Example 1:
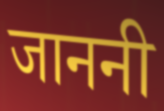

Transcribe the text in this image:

जाननी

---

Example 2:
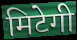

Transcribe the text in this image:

मिटेगी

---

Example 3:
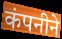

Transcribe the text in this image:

कंपनीने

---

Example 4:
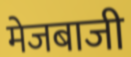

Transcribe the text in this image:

मेजबाजी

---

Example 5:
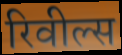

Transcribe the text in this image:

रिवील्स